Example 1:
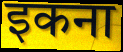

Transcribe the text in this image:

इकना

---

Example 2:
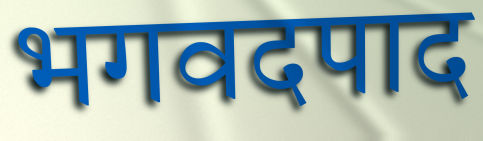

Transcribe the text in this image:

भगवदपाद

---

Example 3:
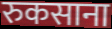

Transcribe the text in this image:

रुकसाना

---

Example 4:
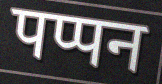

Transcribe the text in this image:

पप्पन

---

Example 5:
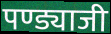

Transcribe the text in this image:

पण्ड्याजी